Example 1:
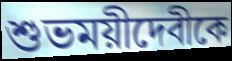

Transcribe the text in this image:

শুভময়ীদেবীকে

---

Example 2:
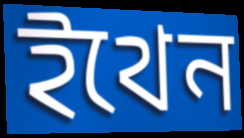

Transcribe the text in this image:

ইথেন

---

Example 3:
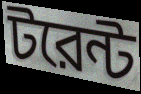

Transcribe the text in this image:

টরেন্ট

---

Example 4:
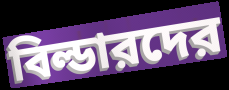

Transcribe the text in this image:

বিল্ডারদের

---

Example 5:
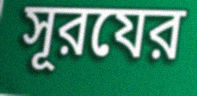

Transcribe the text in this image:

সূরযের